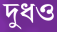
দুধও